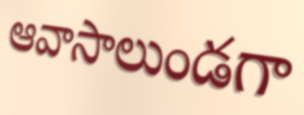
ఆవాసాలుండగా